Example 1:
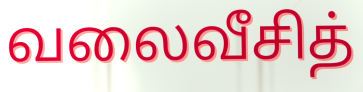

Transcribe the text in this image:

வலைவீசித்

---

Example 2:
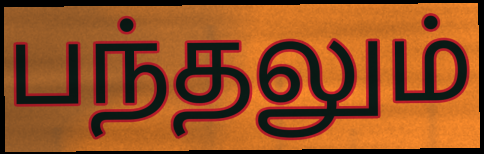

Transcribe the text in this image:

பந்தலும்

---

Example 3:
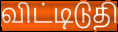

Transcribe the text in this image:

விட்டிடுதி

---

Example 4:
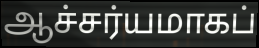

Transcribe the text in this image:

ஆச்சர்யமாகப்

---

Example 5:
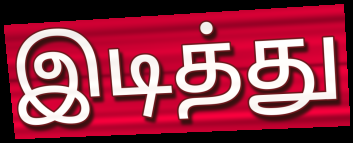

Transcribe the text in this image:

இடித்து